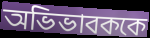
অভিভাবককে